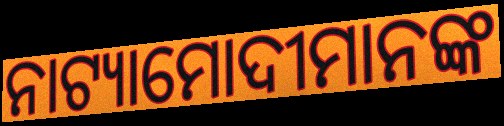
ନାଟ୍ୟାମୋଦୀମାନଙ୍କ